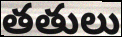
తతులు